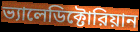
ভ্যালেডিক্টোরিয়ান